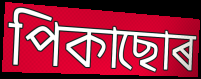
পিকাছোৰ